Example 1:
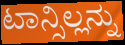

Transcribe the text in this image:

ಟಾನ್ಸಿಲ್ಲನ್ನು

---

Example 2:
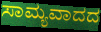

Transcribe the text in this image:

ಸಾಮ್ಯವಾದದ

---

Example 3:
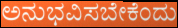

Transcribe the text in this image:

ಅನುಭವಿಸಬೇಕೆಂದು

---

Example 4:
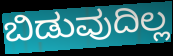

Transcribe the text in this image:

ಬಿಡುವುದಿಲ್ಲ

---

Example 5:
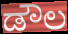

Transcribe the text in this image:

ಡೌಲ